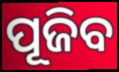
ପୂଜିବ